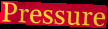
Pressure